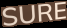
SURE